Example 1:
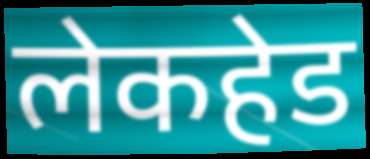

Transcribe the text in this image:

लेकहेड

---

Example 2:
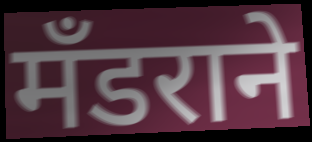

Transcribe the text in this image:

मँडराने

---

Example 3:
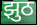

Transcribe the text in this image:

झुठ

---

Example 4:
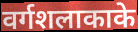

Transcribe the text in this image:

वर्गशलाकाके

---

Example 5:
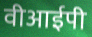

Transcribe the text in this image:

वीआईपी